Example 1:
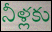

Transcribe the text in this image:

నీళ్లకు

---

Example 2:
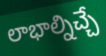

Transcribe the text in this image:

లాభాల్నిచ్చే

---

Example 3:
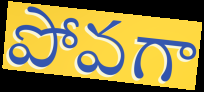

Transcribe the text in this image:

పోవగా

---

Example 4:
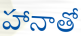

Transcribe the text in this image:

హానాతో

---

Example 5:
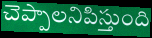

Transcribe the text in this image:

చెప్పాలనిపిస్తుంది